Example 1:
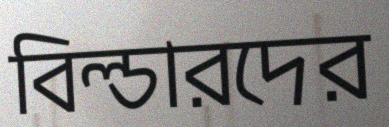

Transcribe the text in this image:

বিল্ডারদের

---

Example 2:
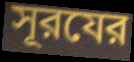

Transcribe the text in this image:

সূরযের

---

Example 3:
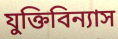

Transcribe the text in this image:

যুক্তিবিন্যাস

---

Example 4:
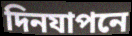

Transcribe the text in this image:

দিনযাপনে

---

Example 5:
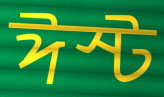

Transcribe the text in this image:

ঈস্ট